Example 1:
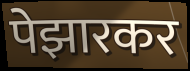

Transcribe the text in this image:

पेझारकर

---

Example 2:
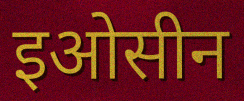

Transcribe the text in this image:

इओसीन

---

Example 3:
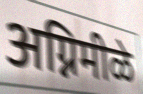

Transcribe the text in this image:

अग्निमीळे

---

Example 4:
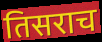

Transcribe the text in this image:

तिसराच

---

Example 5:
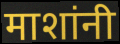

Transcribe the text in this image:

माशांनी